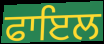
ਫਾਇਲ